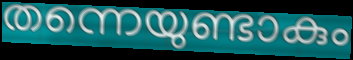
തന്നെയുണ്ടാകും